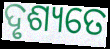
ଦୃଶ୍ୟତେ